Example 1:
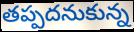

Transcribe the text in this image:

తప్పదనుకున్న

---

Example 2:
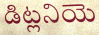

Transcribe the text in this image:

డిట్లనియె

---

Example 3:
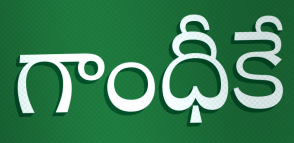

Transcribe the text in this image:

గాంధీకే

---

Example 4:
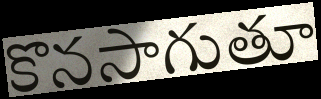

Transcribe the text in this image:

కొనసాగుతూ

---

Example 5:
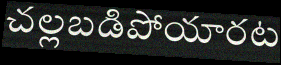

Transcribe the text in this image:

చల్లబడిపోయారట